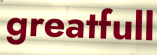
greatfull